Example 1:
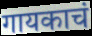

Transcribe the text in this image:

गायकाचं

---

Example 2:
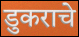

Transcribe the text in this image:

डुकराचे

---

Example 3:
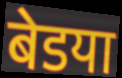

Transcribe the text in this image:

बेडया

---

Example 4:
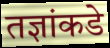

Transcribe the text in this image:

तज्ञांकडे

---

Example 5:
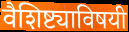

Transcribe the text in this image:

वैशिष्ट्याविषयी